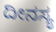
ದೀನಸ್ಯ